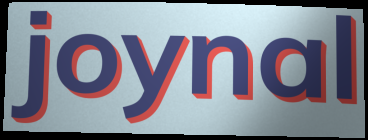
joynal